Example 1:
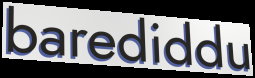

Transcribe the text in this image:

barediddu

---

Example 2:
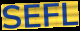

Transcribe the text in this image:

SEFL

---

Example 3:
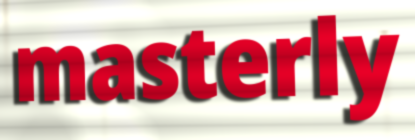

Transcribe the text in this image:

masterly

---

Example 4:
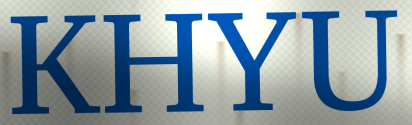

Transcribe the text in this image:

KHYU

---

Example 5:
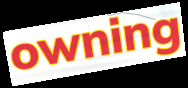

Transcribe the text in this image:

owning